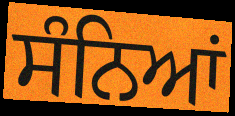
ਸੰਨਿਆਂ